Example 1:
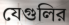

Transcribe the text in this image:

যেগুলির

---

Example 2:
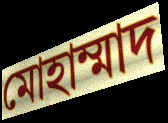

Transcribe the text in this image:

মোহাম্মাদ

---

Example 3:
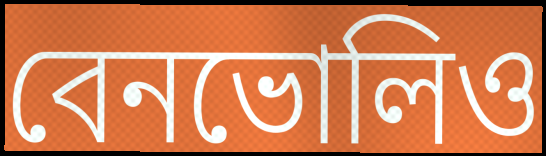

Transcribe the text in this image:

বেনভোলিও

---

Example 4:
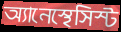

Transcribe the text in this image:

অ্যানেস্থেসিস্ট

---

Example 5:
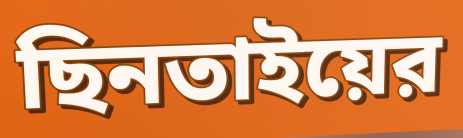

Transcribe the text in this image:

ছিনতাইয়ের